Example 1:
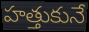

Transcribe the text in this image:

హత్తుకునే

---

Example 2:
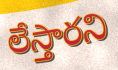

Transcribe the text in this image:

లేస్తారని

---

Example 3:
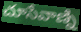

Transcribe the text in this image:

చూసేవాణ్ని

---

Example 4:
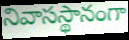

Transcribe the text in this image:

నివాసస్థానంగా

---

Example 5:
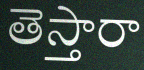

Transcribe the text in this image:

తెస్తారా